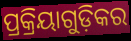
ପ୍ରକ୍ରିୟାଗୁଡ଼ିକର